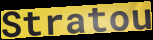
Stratou